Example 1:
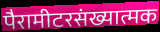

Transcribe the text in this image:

पैरामीटरसंख्यात्मक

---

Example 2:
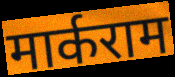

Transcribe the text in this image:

मार्कराम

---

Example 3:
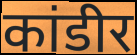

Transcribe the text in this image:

कांडीर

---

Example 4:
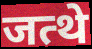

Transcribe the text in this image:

जत्थे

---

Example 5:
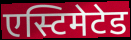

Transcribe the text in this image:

एस्टिमेटेड